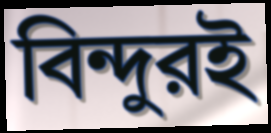
বিন্দুরই